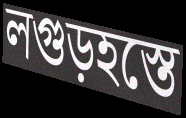
লগুড়হস্তে